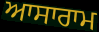
ਆਸਾਰਾਮ